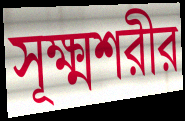
সূক্ষ্মশরীর